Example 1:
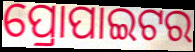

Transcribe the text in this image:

ପ୍ରୋପାଇଟର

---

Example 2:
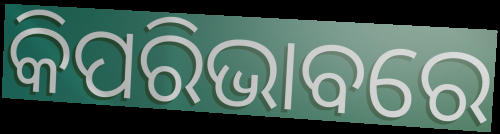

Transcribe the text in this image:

କିପରିଭାବରେ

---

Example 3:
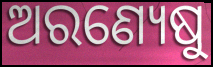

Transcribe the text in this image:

ଅରଣ୍ୟେଷୁ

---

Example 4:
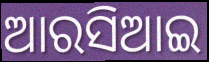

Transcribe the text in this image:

ଆରସିଆଇ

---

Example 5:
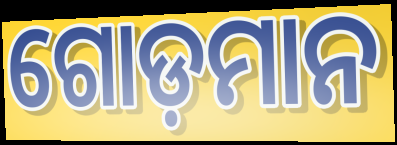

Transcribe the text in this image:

ଗୋଡ଼ମାନ